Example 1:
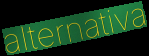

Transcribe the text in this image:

alternativa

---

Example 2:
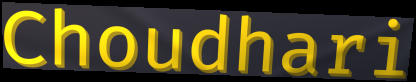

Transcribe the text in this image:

Choudhari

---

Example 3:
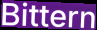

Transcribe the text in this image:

Bittern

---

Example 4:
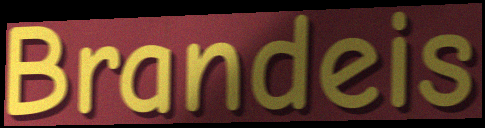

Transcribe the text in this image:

Brandeis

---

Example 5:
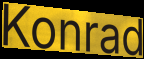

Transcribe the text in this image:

Konrad